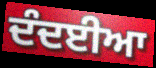
ਦੰਦਈਆ